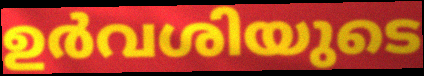
ഉർവശിയുടെ